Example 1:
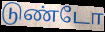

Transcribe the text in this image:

டுண்டோ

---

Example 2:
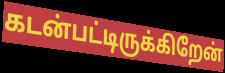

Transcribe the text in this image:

கடன்பட்டிருக்கிறேன்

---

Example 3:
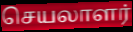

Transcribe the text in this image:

செயலாளர்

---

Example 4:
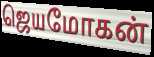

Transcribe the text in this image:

ஜெயமோகன்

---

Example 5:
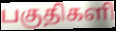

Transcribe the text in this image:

பகுதிகளி